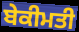
ਬੇਕੀਮਤੀ